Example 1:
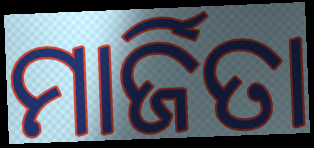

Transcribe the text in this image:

ମାର୍ଜିତା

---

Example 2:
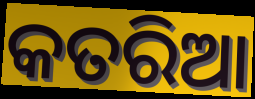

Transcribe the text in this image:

କତରିଆ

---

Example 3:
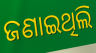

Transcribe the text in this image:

ଜଣାଇଥିଲି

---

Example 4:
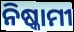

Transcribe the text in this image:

ନିଷ୍କାମୀ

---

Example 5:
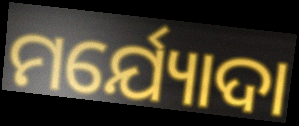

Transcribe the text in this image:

ମର୍ଯ୍ୟୋଦା